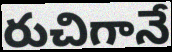
రుచిగానే